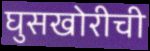
घुसखोरीची